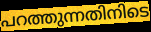
പറത്തുന്നതിനിടെ